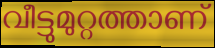
വീട്ടുമുറ്റത്താണ്